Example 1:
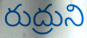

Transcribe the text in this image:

రుద్రుని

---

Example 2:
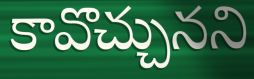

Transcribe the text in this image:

కావొచ్చునని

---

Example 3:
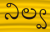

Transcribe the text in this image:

నిల్వ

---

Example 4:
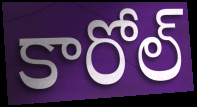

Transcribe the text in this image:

కారోల్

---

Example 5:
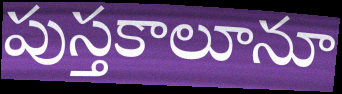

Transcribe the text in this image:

పుస్తకాలూనూ